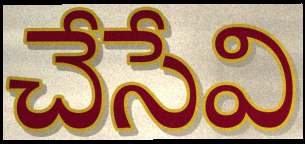
చేసేవి